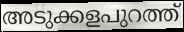
അടുക്കളപുറത്ത്